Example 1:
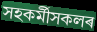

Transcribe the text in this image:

সহকৰ্মীসকলৰ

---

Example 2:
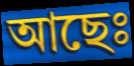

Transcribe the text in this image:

আছেঃ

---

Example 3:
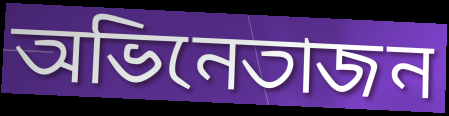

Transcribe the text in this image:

অভিনেতাজন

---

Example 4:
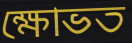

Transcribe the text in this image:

ক্ষোভত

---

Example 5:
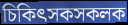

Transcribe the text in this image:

চিকিৎসকসকলক